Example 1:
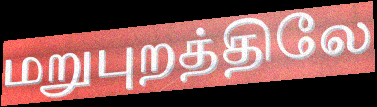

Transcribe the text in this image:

மறுபுறத்திலே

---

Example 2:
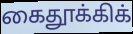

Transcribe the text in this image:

கைதூக்கிக்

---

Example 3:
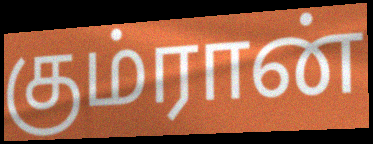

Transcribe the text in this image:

கும்ரான்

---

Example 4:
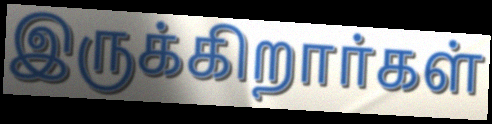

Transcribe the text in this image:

இருக்கிறார்கள்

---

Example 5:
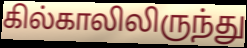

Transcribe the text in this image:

கில்காலிலிருந்து